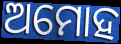
ଅମୋହ